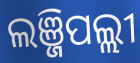
ଲଞ୍ଜିପଲ୍ଲୀ